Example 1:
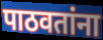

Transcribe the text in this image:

पाठवतांना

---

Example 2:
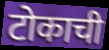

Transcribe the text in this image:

टोकाची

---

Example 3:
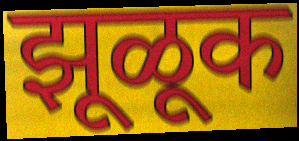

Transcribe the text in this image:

झूळूक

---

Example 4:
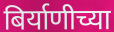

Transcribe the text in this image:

बिर्याणीच्या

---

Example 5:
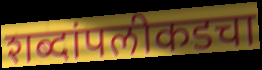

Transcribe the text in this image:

शब्दांपलीकडचा